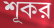
শূকর